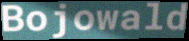
Bojowald